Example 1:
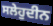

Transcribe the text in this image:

ਸਲੇਹੁਦੀਨ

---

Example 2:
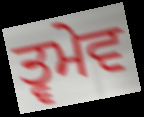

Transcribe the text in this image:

ਤ੍ਵਮੇਵ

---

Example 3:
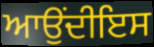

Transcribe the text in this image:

ਆਉਂਦੀਇਸ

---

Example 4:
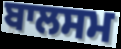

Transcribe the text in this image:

ਬਾਲਸਮ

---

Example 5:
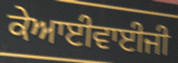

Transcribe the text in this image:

ਕੇਆਈਵਾਈਜੀ